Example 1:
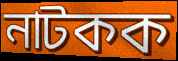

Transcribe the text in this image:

নাটকক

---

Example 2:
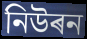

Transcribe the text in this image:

নিউৰন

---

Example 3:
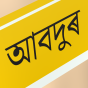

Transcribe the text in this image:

আবদুৰ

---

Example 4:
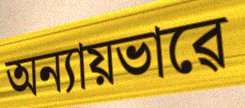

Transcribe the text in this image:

অন্যায়ভাৱে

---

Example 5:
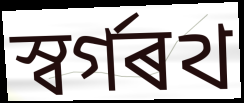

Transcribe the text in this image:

স্বৰ্গৰথ